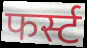
फर्स्‍ट